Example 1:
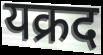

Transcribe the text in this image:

यक्रद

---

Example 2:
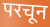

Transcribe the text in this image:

परचून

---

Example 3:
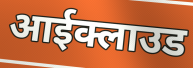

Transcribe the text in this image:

आईक्लाउड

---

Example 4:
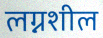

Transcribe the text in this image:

लग्नशील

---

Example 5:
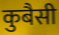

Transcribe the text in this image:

कुबैसी